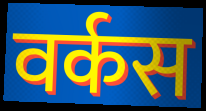
वर्कस